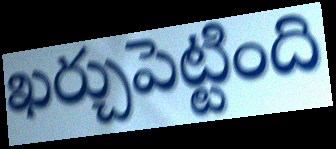
ఖర్చుపెట్టింది